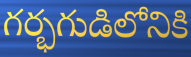
గర్భగుడిలోనికి